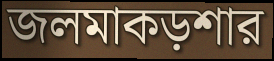
জলমাকড়শার